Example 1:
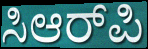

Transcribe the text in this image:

ಸಿಆರ್‌ಪಿ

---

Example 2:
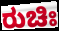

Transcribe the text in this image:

ರುಚಿಃ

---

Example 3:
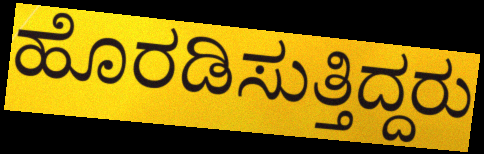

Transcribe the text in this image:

ಹೊರಡಿಸುತ್ತಿದ್ದರು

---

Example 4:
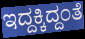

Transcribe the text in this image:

ಇದ್ದಕ್ಕಿದ್ದಂತೆ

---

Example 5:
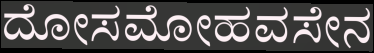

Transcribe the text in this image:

ದೋಸಮೋಹವಸೇನ